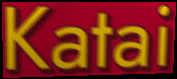
Katai